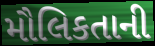
મૌલિકતાની